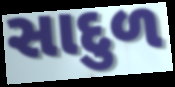
સાદુળ